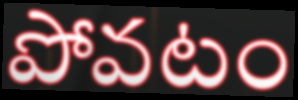
పోవటం